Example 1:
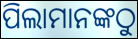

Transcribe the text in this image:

ପିଲାମାନଙ୍କଠୁ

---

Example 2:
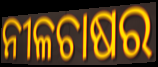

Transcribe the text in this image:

ନୀଳଚାଷର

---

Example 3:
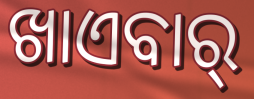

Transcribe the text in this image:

ଖାଏବାର୍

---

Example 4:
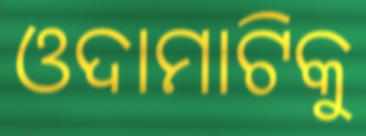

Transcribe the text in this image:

ଓଦାମାଟିକୁ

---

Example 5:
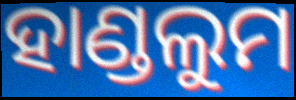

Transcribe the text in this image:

ହାଣ୍ଡଲୁମ